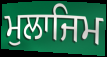
ਮੁਲਾਜਿਮ